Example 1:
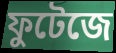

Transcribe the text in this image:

ফুটেজে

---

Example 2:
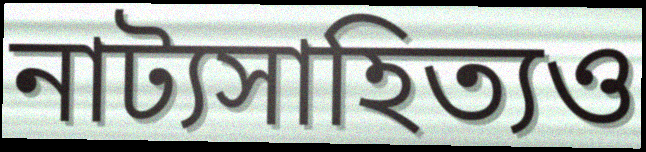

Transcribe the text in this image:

নাট্যসাহিত্যও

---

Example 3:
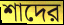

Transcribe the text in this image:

শাদের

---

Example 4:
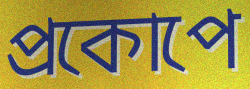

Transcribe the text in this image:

প্রকোপে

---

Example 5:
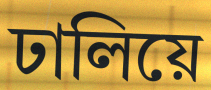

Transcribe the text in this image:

ঢালিয়ে